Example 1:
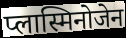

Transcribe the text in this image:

प्लास्मिनोजेन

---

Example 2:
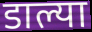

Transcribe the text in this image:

डाल्या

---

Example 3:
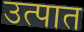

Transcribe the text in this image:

उत्पात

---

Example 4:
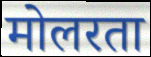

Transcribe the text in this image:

मोलरता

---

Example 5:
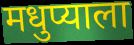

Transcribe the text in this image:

मधुप्याला